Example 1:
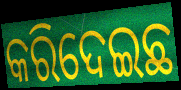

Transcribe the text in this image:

କରିଦେଇଛ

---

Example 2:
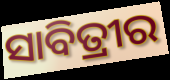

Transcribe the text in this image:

ସାବିତ୍ରୀର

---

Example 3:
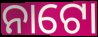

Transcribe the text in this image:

ନାଟୋ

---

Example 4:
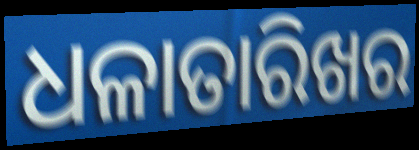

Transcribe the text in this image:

ଧଳାତାରିଖର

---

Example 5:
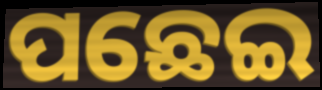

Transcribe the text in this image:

ପଛେଇ